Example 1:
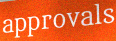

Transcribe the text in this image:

approvals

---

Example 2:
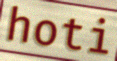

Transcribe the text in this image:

hoti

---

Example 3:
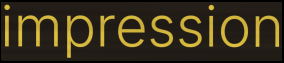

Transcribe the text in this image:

impression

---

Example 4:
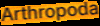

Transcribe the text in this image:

Arthropoda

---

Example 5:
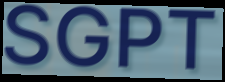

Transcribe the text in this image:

SGPT